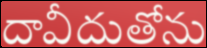
దావీదుతోను